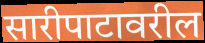
सारीपाटावरील